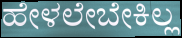
ಹೇಳಲೇಬೇಕಿಲ್ಲ